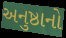
અનુષ્ઠાનો